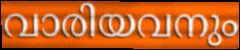
വാരിയവനും